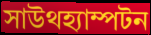
সাউথহ্যাম্পটন